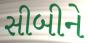
સીબીને